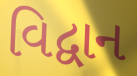
વિદ્વાન